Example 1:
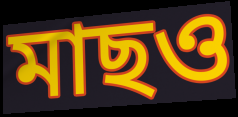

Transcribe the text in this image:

মাছও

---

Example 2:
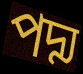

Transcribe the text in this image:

পদ্ম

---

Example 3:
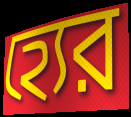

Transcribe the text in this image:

হ্যের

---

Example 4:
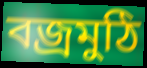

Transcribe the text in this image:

বজ্রমুঠি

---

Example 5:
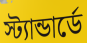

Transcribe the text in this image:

স্ট্যান্ডার্ডে